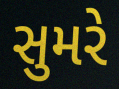
સુમરે